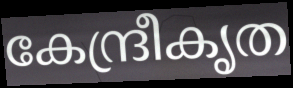
കേന്ദ്രീകൃത